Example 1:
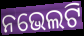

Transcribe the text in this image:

ନଭେଲଟି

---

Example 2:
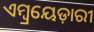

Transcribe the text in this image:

ଏମ୍ୱ୍ରୟେଡ଼ାରୀ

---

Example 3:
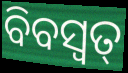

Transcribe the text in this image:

ବିବସ୍ଵତ୍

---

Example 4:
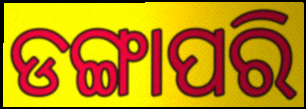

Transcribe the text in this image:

ଡଙ୍ଗାପରି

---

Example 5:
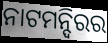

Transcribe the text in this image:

ନାଟମନ୍ଦିରର